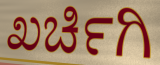
ಖರ್ಚಿಗಿ